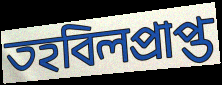
তহবিলপ্রাপ্ত